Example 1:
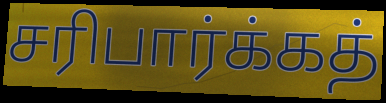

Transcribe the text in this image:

சரிபார்க்கத்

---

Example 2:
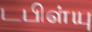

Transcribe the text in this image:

டபிள்யு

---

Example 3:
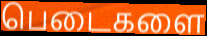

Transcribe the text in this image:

பெடைகளை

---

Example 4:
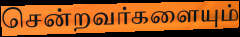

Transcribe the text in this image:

சென்றவர்களையும்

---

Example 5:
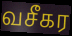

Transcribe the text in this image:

வசீகர